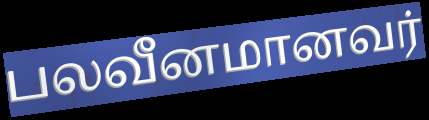
பலவீனமானவர்